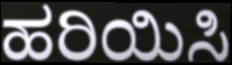
ಹರಿಯಿಸಿ